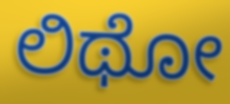
ಲಿಥೋ